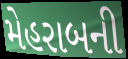
મેહરાબની